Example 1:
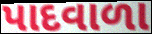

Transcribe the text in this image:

પાદવાળા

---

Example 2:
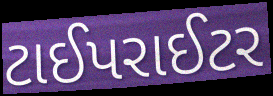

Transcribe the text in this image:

ટાઈપરાઈટર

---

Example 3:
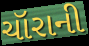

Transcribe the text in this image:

ચૉરાની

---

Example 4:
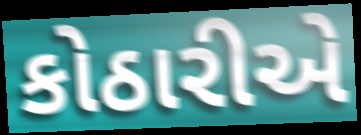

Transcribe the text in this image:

કોઠારીએ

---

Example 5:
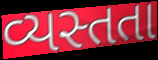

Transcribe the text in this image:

વ્યસ્તતા